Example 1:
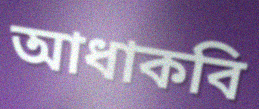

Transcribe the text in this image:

আধাকবি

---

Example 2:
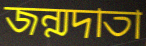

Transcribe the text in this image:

জন্মদাতা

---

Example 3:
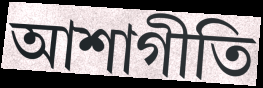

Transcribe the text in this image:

আশাগীতি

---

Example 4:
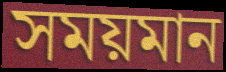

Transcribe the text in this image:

সময়মান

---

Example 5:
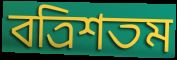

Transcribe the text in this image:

বত্রিশতম